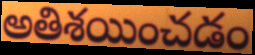
అతిశయించడం